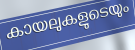
കായലുകളുടെയും